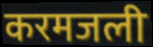
करमजली